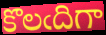
కొలఁదిగా